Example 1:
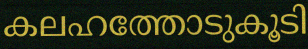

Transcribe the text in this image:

കലഹത്തോടുകൂടി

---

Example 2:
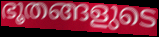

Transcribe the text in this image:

ഭൂതങ്ങളുടെ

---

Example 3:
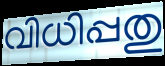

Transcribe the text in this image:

വിധിപ്പതു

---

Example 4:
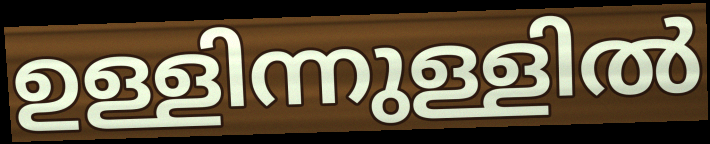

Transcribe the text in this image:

ഉള്ളിന്നുള്ളിൽ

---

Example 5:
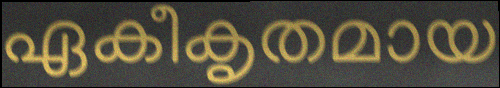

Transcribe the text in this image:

ഏകീകൃതമായ